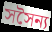
সসৈন্য